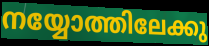
നയ്യോത്തിലേക്കു